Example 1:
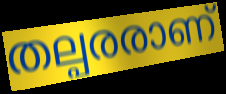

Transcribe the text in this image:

തല്പരരാണ്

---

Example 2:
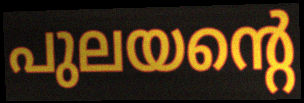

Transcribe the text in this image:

പുലയന്റെ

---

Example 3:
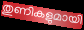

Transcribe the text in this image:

തുണികളുമായി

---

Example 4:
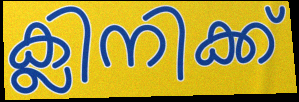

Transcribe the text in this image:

ക്ലിനിക്ക്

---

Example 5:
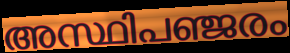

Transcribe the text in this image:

അസ്ഥിപഞ്ജരം